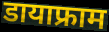
डायाफ्राम